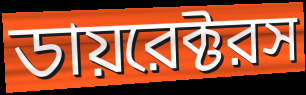
ডায়রেক্টরস